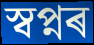
স্বপ্নৰ